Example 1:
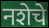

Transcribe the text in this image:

नशेचे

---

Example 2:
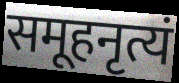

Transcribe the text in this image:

समूहनृत्यं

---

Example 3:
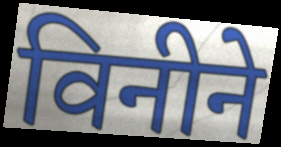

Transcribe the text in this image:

विनीने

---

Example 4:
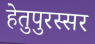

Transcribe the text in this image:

हेतुपुरस्सर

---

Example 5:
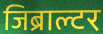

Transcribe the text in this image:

जिब्राल्टर